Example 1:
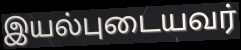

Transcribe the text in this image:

இயல்புடையவர்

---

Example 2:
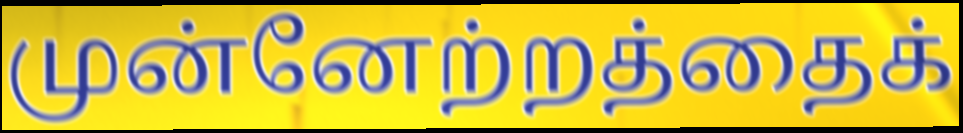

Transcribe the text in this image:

முன்னேற்றத்தைக்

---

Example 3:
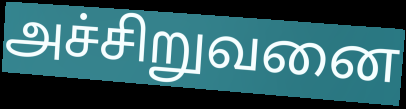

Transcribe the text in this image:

அச்சிறுவனை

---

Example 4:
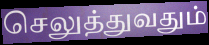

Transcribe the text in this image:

செலுத்துவதும்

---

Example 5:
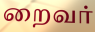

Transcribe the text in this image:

றைவர்